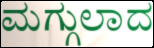
ಮಗ್ಗುಲಾದ